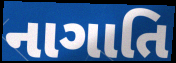
નાગાતિ